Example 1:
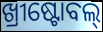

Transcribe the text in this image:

ଖ୍ରୀଷ୍ଟୋବଲ୍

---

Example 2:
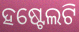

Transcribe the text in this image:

ହଷ୍ଟେଲଟି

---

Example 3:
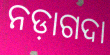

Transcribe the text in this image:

ନଡ଼ାଗଦା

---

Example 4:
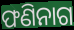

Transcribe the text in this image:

ଫଣିନାଗ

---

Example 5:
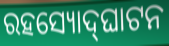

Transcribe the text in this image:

ରହସ୍ୟୋଦ୍‍ଘାଟନ